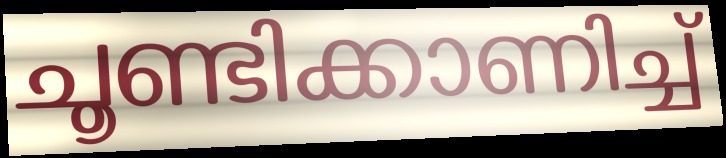
ചൂണ്ടിക്കാണിച്ച്